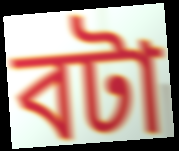
বটা